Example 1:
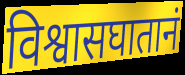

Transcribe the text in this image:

विश्वासघातानं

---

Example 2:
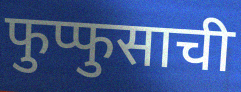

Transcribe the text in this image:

फुप्फुसाची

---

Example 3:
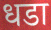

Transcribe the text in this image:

धडा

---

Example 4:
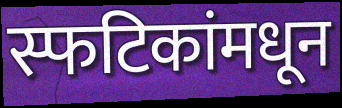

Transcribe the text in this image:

स्फटिकांमधून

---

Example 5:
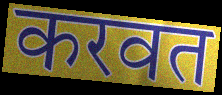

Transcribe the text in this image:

करवत